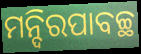
ମନ୍ଦିରପାବଚ୍ଛ